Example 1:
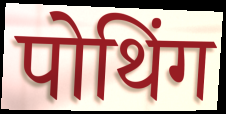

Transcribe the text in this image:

पोथिंग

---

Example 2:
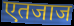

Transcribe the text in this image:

एतजाज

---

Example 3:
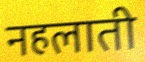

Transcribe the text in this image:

नहलाती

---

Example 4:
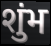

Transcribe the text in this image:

शुंभ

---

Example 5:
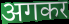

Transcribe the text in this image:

अगकर